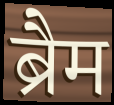
ब्रैम